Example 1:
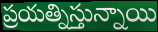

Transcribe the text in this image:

ప్రయత్నిస్తున్నాయి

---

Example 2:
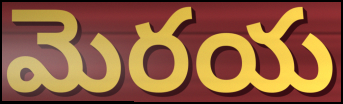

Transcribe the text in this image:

మెరయ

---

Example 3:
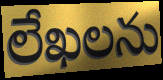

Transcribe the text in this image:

లేఖలను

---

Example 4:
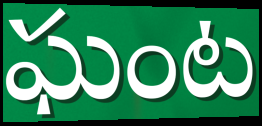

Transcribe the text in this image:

ఘంట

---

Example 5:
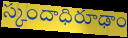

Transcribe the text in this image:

స్కందాధిరూఢాం